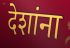
देशांना